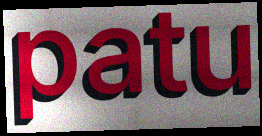
patu